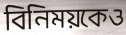
বিনিময়কেও